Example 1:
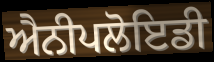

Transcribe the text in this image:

ਐਨੀਪਲੋਇਡੀ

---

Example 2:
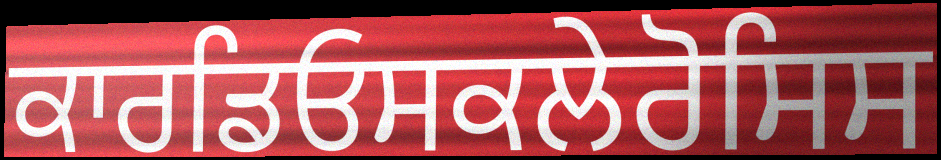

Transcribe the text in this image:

ਕਾਰਡਿਓਸਕਲੇਰੋਸਿਸ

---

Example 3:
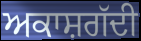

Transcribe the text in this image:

ਅਕਾਸ਼ਗੱਦੀ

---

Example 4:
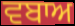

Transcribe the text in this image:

ਵਬਾਅ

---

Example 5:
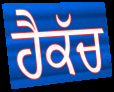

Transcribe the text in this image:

ਹੈਕੱਚ